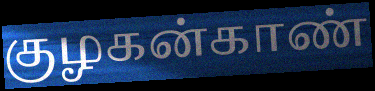
குழகன்காண்